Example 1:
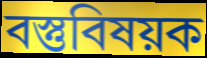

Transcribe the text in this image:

বস্তুবিষয়ক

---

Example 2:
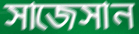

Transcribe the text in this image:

সাজেসান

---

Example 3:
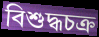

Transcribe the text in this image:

বিশুদ্ধচক্র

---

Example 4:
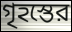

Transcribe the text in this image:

গৃহস্তের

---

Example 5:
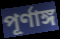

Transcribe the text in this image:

পূর্ণাঙ্গ